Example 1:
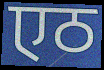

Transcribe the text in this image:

एठ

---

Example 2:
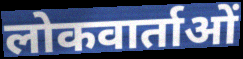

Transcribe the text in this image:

लोकवार्ताओं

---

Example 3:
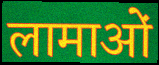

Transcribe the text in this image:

लामाओं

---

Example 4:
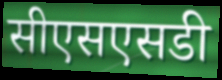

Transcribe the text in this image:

सीएसएसडी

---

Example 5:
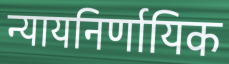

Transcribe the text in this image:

न्यायनिर्णायिक